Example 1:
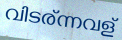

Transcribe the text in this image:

വിടര്ന്നവള്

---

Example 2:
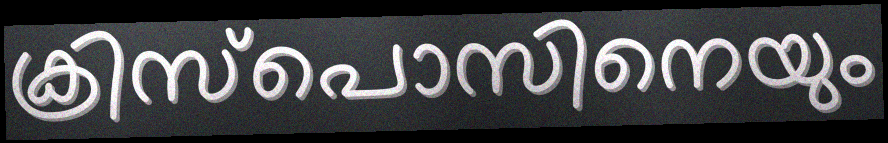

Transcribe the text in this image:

ക്രിസ്പൊസിനെയും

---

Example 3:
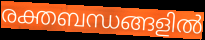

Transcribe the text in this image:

രക്തബന്ധങ്ങളിൽ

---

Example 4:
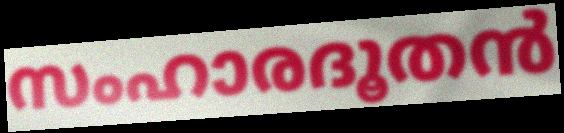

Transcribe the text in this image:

സംഹാരദൂതൻ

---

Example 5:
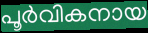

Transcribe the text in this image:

പൂർവികനായ